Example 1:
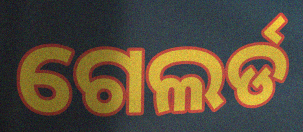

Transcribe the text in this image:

ଗେଲର୍ଡ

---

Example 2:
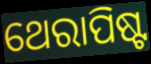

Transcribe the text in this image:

ଥେରାପିଷ୍ଟ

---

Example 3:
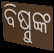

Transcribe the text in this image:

ବିଷ୍ନୁଙ୍କ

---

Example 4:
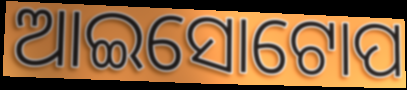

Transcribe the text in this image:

ଆଇସୋଟୋପ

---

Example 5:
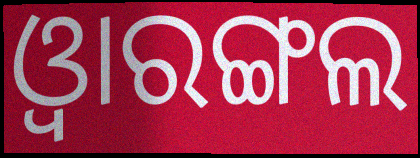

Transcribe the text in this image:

ଓ୍ବାରଙ୍ଗଲ